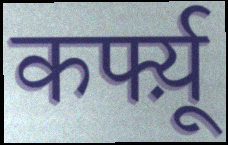
कर्फ्य़ू